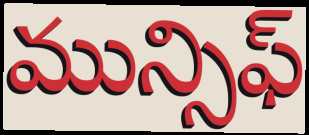
మున్సిఫ్